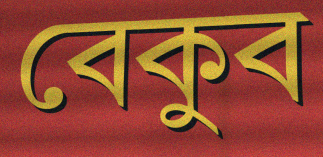
বেকুব